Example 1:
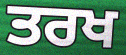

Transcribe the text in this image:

ਤਰਖ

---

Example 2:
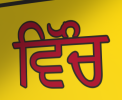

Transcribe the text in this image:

ਵਿੱੰਚ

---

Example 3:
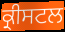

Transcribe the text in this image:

ਕ੍ਰੀਸਟਲ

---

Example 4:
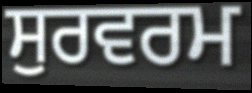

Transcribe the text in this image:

ਸੁਰਵਰਮ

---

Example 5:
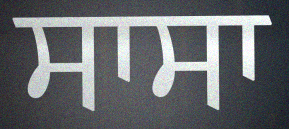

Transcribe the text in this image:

ਸਾਸਾ